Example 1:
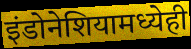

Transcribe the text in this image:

इंडोनेशियामध्येही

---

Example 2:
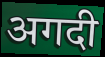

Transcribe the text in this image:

अगदी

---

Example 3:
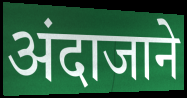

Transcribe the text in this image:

अंदाजाने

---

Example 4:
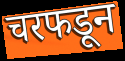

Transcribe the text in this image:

चरफडून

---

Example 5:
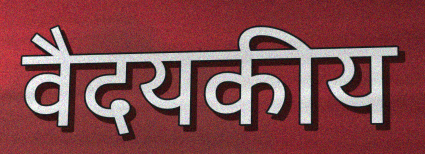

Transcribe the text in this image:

वैदयकीय